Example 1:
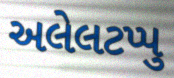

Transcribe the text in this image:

અલેલટપ્પુ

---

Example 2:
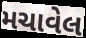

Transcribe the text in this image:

મચાવેલ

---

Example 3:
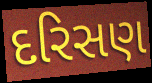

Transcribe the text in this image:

દરિસણ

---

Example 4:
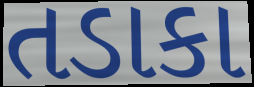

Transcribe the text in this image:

તડાકા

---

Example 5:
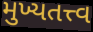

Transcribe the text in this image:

મુખ્યતત્ત્વ